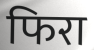
फिरा